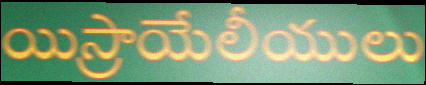
యిస్రాయేలీయులు